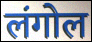
लंगोल